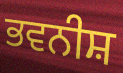
ਭਵਨੀਸ਼